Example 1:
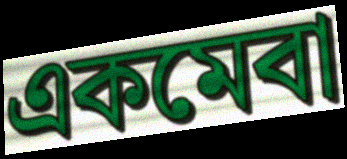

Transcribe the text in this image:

একমেবা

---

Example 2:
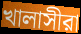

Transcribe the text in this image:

খালাসীরা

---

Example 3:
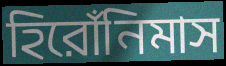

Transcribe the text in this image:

হিরোঁনিমাস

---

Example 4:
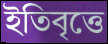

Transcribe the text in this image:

ইতিবৃত্তে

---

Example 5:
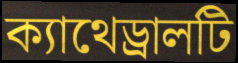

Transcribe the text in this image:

ক্যাথেড্রালটি